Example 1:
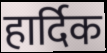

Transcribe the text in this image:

हार्दिक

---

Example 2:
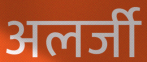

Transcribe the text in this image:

अलर्जी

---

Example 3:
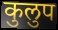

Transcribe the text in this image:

कुलुप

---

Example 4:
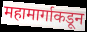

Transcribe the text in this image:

महामार्गाकडून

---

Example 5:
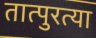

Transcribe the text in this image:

तात्पुरत्या